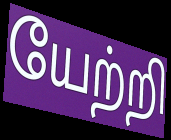
யேற்றி